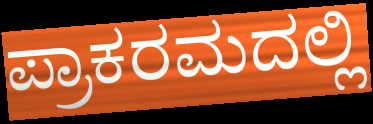
ಪ್ರಾಕರಮದಲ್ಲಿ